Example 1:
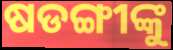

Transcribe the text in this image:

ଷଡଙ୍ଗୀଙ୍କୁ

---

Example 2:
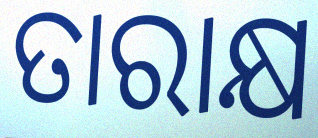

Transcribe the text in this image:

ତାରାକ୍ଷ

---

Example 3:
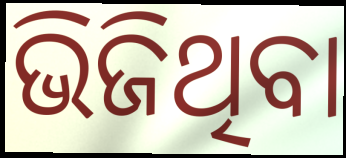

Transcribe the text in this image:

ଭିଜିଥିବା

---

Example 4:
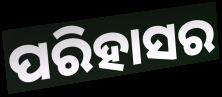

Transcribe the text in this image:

ପରିହାସର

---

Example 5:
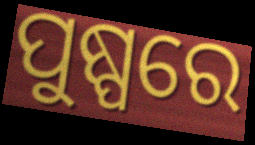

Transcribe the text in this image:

ପୁଷ୍ପରେ